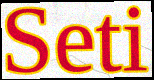
Seti